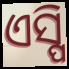
ଏସ୍ପି